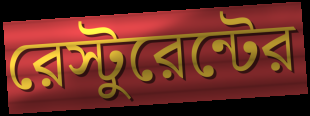
রেস্টুরেন্টের